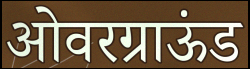
ओवरग्राऊंड